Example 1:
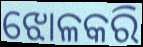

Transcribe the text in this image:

ଝୋଳକରି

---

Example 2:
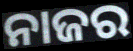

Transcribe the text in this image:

ନାଜର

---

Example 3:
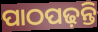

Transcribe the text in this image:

ପାଠପଢ଼ନ୍ତି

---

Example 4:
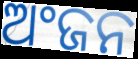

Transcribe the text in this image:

ଅଂଜନ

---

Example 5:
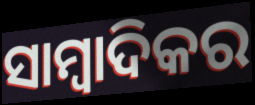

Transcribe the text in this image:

ସାମ୍ବାଦିକର